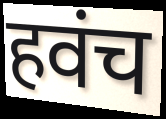
हवंच